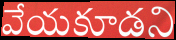
వేయకూడని